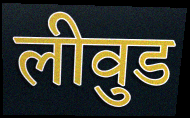
लीवुड